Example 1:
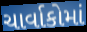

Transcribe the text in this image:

ચાર્વાકોમાં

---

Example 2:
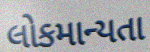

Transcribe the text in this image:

લોકમાન્યતા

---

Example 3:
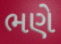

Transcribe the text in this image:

ભણે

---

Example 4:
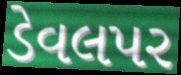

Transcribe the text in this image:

ડેવલપર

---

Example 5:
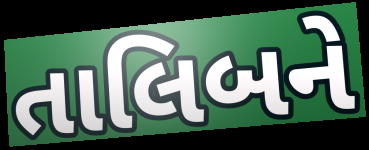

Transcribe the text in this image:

તાલિબને